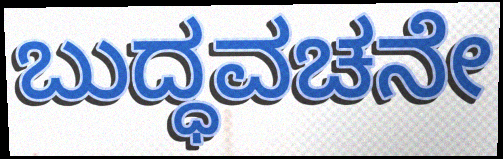
ಬುದ್ಧವಚನೇ